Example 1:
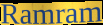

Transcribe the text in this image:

Ramram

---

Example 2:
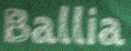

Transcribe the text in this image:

Ballia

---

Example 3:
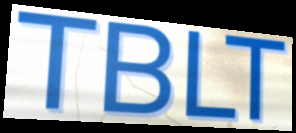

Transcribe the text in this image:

TBLT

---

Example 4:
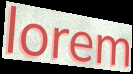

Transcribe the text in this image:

lorem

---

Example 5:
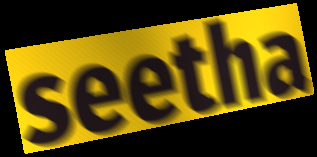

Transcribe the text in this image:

seetha